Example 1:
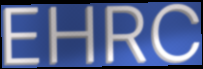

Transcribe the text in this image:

EHRC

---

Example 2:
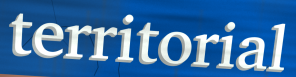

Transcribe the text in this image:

territorial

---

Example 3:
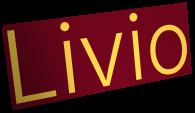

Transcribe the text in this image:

Livio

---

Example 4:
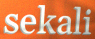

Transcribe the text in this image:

sekali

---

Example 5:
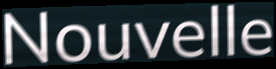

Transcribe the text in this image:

Nouvelle